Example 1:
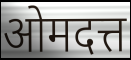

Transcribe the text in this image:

ओमदत्त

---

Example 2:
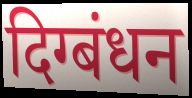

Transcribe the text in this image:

दिग्बंधन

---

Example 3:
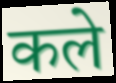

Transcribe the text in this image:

कले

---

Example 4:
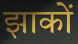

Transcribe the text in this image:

झाकों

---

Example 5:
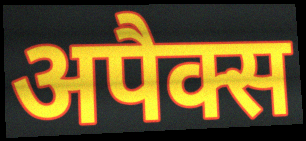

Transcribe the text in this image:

अपैक्स